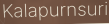
Kalapurnsuri